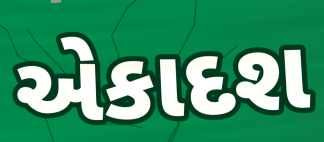
એકાદશ